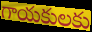
గాయకులకు